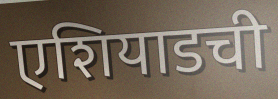
एशियाडची